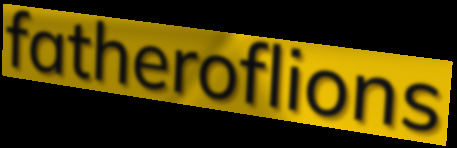
fatheroflions